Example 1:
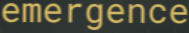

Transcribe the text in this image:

emergence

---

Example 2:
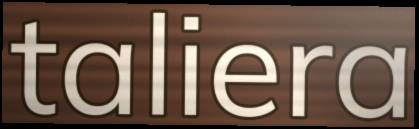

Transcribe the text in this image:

taliera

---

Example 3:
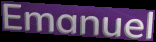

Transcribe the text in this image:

Emanuel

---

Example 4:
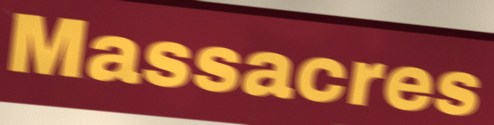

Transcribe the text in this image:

Massacres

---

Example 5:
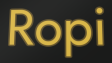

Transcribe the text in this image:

Ropi